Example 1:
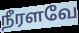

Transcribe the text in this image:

நீரளவே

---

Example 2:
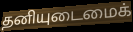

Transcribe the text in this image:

தனியுடைமைக்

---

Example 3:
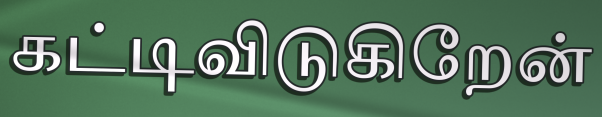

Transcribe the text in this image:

கட்டிவிடுகிறேன்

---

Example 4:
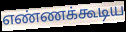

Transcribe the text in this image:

எண்ணக்கூடிய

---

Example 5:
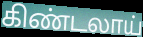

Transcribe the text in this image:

கிண்டலாய்